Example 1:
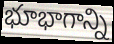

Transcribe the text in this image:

భూభాగాన్ని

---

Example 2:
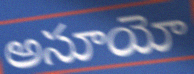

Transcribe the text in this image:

అసూయో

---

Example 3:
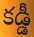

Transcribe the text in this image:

కడ్డీ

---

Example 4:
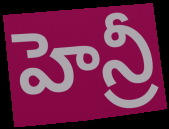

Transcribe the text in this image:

హెన్రీ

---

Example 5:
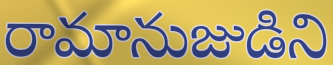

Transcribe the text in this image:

రామానుజుడిని